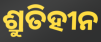
ଶ୍ରୁତିହୀନ